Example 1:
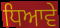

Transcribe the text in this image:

ਧਿਆਵੇ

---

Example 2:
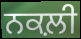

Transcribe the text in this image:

ਨਕਲ਼ੀ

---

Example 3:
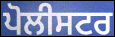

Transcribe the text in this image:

ਪੋਲੀਸਟਰ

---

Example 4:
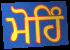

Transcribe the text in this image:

ਮੋਹਿੰ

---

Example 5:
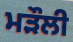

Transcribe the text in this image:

ਮੜੌਲੀ